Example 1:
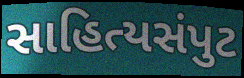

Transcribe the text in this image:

સાહિત્યસંપુટ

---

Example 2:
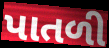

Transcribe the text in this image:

પાતળી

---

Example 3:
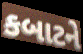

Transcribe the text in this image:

કબાટને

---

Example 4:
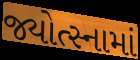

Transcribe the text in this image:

જ્યોત્સ્નામાં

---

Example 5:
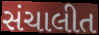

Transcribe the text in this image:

સંચાલીત